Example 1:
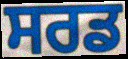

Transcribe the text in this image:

ਸਰਡ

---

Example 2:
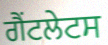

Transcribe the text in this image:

ਗੈਂਟਲੇਟਸ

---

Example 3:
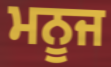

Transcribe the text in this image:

ਮਨੂਜ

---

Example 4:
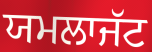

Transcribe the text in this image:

ਯਮਲਾਜੱਟ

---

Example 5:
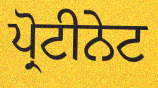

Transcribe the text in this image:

ਪ੍ਰੋਟੀਨੇਟ